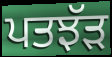
ਪਤਝੱੜ